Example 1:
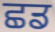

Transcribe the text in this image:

ਛਡ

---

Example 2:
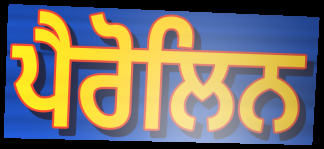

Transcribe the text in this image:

ਪੈਰੋਲਿਨ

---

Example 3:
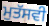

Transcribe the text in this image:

ਮੁਤੱਸਵੀ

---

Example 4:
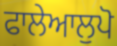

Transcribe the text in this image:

ਫਾਲੇਆਲੁਪੋ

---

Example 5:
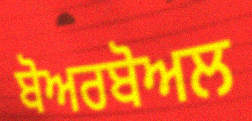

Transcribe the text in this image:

ਬੋਅਰਬੋਅਲ